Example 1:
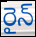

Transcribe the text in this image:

రైన్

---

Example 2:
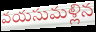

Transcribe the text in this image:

వయసుమళ్లిన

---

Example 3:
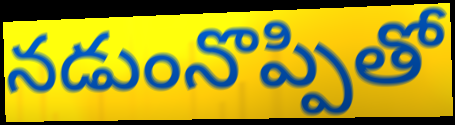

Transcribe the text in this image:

నడుంనొప్పితో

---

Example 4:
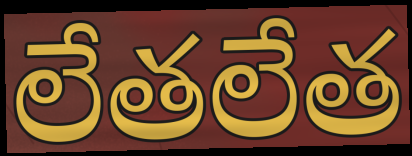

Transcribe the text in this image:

లేతలేత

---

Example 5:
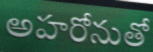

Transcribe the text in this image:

అహరోనుతో